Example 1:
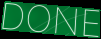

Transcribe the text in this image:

DONE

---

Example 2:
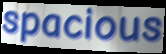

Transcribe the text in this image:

spacious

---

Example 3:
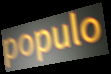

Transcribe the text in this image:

populo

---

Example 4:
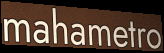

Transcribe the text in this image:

mahametro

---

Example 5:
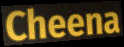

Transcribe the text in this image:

Cheena